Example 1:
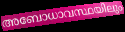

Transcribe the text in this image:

അബോധാവസ്ഥയിലും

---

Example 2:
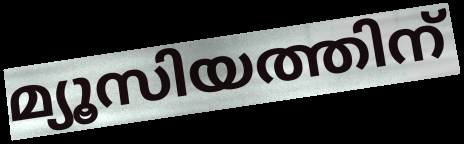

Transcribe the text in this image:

മ്യൂസിയത്തിന്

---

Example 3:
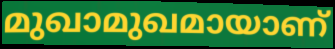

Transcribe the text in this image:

മുഖാമുഖമായാണ്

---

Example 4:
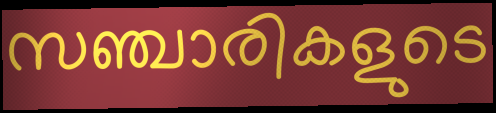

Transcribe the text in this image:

സഞ്ചാരികളുടെ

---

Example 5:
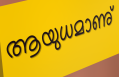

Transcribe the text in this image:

ആയുധമാണു്